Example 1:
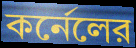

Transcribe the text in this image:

কর্নেলের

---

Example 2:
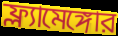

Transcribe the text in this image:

ফ্ল্যামেঙ্গোর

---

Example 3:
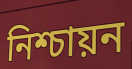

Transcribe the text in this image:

নিশ্চায়ন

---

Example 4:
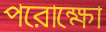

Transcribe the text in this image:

পরোক্ষো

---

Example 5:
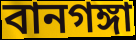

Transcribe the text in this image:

বানগঙ্গা